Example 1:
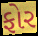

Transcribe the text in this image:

ફોર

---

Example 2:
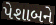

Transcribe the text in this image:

પેશાબને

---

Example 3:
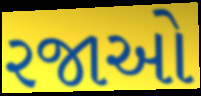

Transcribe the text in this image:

રજાઓ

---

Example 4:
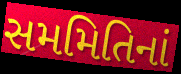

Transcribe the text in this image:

સમમિતિનાં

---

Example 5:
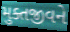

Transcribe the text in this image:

મુક્તજીવને